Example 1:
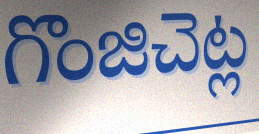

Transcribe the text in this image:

గొంజిచెట్ల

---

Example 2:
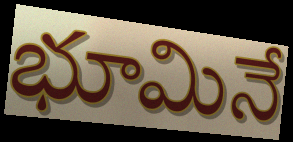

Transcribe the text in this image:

భూమినే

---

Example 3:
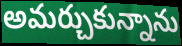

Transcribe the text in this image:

అమర్చుకున్నాను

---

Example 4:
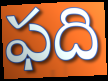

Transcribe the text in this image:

ఫది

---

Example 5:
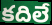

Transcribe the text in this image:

కదిలే